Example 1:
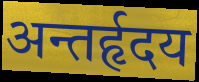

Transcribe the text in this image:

अन्तर्हृदय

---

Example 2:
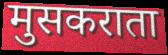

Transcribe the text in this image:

मुसकराता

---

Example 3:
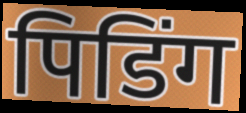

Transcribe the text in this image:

पिडिंग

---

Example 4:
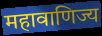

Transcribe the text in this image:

महावाणिज्‍य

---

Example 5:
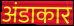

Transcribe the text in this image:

अंडाकार